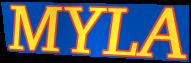
MYLA